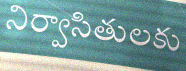
నిర్వాసితులకు